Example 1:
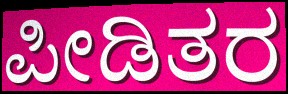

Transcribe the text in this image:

ಪೀಡಿತರ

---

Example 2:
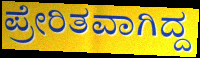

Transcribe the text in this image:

ಪ್ರೇರಿತವಾಗಿದ್ದ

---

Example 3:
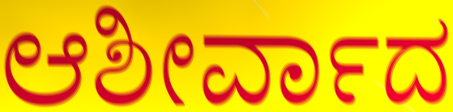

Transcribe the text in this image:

ಆಶೀರ್ವಾದ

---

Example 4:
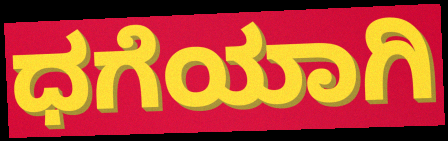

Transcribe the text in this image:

ಧಗೆಯಾಗಿ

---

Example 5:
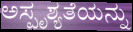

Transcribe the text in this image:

ಅಸ್ಪೃಶ್ಯತೆಯನ್ನು